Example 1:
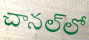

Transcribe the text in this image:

చానల్‌లో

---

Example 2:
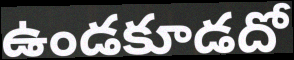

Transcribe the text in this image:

ఉండకూడదో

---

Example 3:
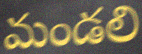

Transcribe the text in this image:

మండలి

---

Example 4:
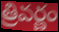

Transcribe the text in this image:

త్రివర్ణం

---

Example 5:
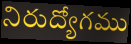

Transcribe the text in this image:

నిరుద్యోగము